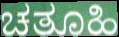
ಚತೂಹಿ